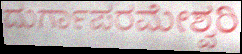
ದುರ್ಗಾಪರಮೇಶ್ವರಿ